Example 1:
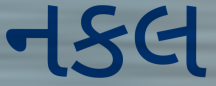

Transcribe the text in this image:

નકલ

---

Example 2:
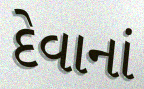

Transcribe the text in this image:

દેવાનાં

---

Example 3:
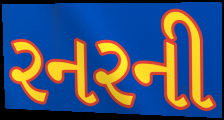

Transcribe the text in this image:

રનરની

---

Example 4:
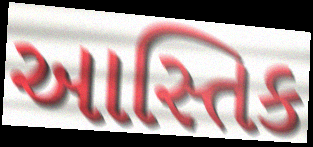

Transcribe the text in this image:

આસ્તિક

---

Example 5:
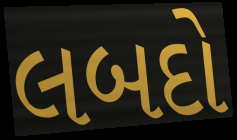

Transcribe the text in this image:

લબદો